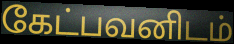
கேட்பவனிடம்